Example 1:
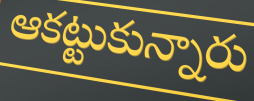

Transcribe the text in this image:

ఆకట్టుకున్నారు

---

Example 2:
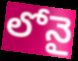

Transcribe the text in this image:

లోనై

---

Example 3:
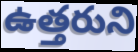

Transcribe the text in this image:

ఉత్తరుని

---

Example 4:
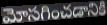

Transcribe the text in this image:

మోసగించడానికి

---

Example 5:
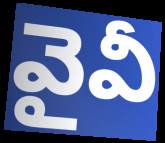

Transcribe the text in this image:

వైవీ